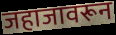
जहाजावरून